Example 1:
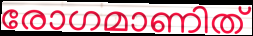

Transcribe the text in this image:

രോഗമാണിത്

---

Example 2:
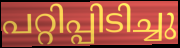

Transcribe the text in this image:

പറ്റിപ്പിടിച്ചു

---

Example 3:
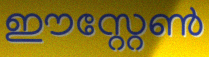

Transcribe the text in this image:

ഈസ്റ്റേൺ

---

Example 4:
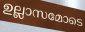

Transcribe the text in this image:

ഉല്ലാസമോടെ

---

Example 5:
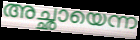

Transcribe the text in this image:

അച്ഛായെന്ന